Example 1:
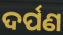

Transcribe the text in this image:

ଦର୍ପଣ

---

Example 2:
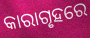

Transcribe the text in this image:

କାରାଗୃହରେ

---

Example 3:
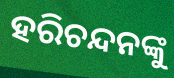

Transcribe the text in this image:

ହରିଚନ୍ଦନଙ୍କୁ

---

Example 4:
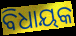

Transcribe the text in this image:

ବିଧାୟକ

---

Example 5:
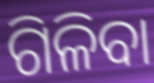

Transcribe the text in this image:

ଗିଳିବା